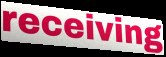
receiving